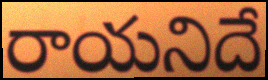
రాయనిదే